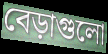
বেড়াগুলো